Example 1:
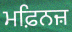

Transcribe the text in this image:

ਮਫ਼ਿਨਜ਼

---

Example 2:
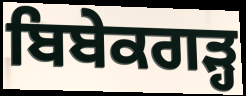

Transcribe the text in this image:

ਬਿਬੇਕਗੜ੍ਹ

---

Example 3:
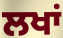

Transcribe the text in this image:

ਲਖਾਂ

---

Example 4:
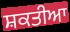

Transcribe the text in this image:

ਸ਼ਕਤੀਆ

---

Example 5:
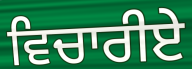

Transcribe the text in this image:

ਵਿਚਾਰੀਏ